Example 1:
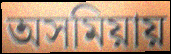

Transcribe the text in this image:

অসমিয়ায়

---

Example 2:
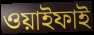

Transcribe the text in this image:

ওয়াইফাই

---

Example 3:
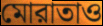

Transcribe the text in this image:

মোরাতাও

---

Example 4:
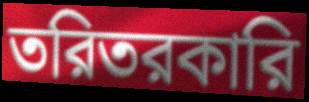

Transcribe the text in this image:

তরিতরকারি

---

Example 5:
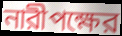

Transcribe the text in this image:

নারীপক্ষের